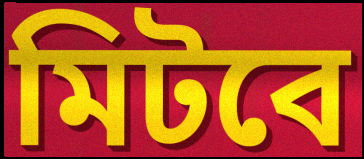
মিটবে